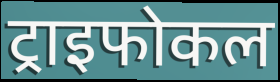
ट्राइफोकल